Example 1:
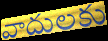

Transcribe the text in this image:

వాదులకు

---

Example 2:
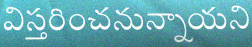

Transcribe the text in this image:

విస్తరించనున్నాయని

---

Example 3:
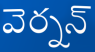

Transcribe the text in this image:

వెర్నన్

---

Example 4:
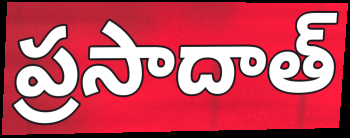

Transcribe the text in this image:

ప్రసాదాత్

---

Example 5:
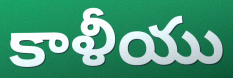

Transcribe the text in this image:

కాళీయు